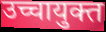
उच्‍चायुक्‍त